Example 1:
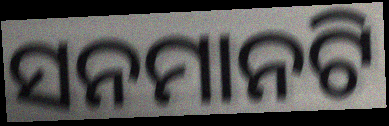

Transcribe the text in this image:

ସନମାନଟି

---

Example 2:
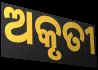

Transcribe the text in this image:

ଅକୃତୀ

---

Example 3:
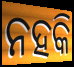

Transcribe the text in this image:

ନହକି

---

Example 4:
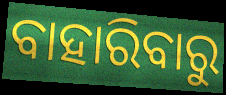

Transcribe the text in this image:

ବାହାରିବାରୁ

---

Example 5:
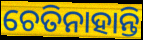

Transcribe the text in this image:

ଚେତିନାହାନ୍ତି